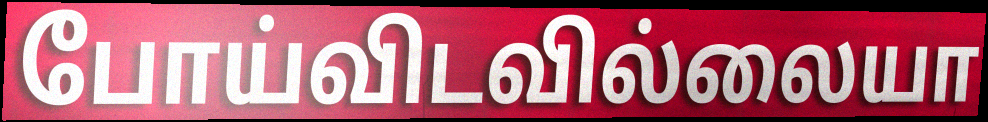
போய்விடவில்லையா